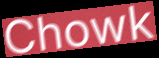
Chowk